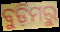
ବୁଡ଼ିମରୁ